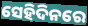
ସେହିଦିନରେ